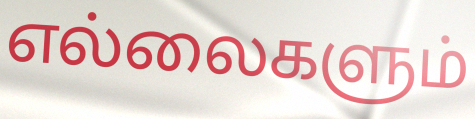
எல்லைகளும்